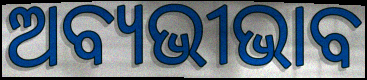
ଅବ୍ୟଭୀଭାବ